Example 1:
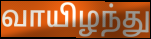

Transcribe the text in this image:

வாயிழந்து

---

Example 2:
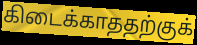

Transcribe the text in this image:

கிடைக்காததற்குக்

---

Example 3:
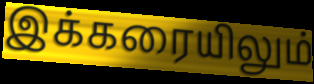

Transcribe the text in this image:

இக்கரையிலும்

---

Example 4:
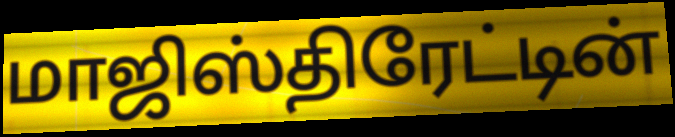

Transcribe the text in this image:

மாஜிஸ்திரேட்டின்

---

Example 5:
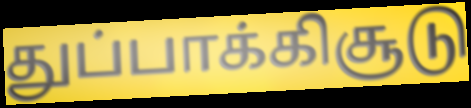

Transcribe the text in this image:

துப்பாக்கிசூடு